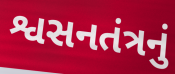
શ્વસનતંત્રનું